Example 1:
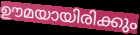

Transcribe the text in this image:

ഊമയായിരിക്കും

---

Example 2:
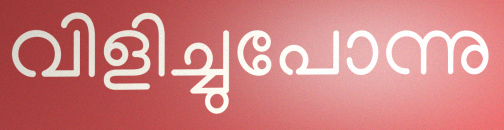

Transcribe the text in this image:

വിളിച്ചുപോന്നു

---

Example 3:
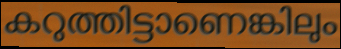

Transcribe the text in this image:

കറുത്തിട്ടാണെങ്കിലും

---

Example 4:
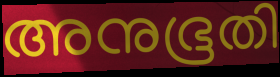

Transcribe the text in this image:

അനുഭൂതി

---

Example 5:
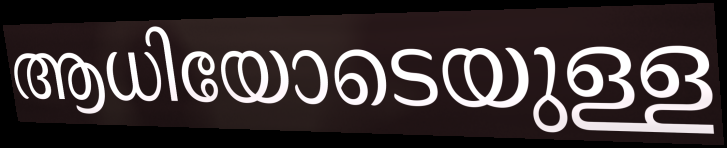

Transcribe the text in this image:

ആധിയോടെയുള്ള